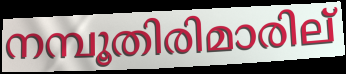
നമ്പൂതിരിമാരില്